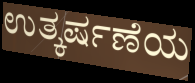
ಉತ್ಕರ್ಷಣೆಯ